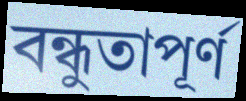
বন্ধুতাপূর্ণ